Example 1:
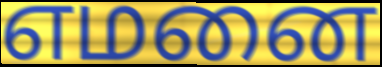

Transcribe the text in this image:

எமனை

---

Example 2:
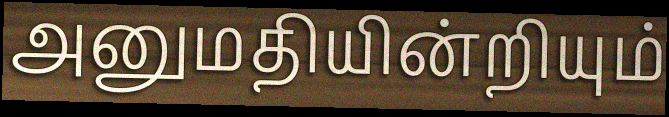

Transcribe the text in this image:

அனுமதியின்றியும்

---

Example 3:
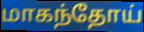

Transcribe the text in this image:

மாகந்தோய்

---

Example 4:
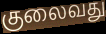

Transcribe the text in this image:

குலைவது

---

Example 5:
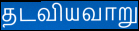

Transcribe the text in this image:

தடவியவாறு